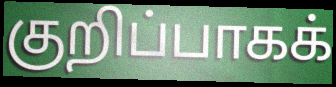
குறிப்பாகக்